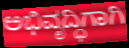
ಅಭಿವೃದ್ಧಿಗಾಗಿ